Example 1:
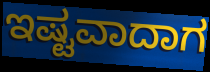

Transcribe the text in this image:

ಇಷ್ಟವಾದಾಗ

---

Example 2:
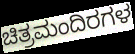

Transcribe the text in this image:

ಚಿತ್ರಮಂದಿರಗಳ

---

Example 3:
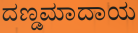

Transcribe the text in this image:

ದಣ್ಡಮಾದಾಯ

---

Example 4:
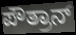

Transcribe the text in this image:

ಪೌತ್ರಾನ್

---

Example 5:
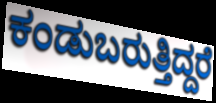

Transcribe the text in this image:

ಕಂಡುಬರುತ್ತಿದ್ದರೆ